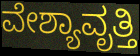
ವೇಶ್ಯಾವೃತ್ತಿ